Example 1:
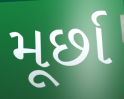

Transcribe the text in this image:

મૂર્છા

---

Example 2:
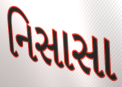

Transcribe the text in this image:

નિસાસા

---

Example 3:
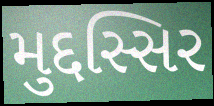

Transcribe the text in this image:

મુદ્દસ્સિર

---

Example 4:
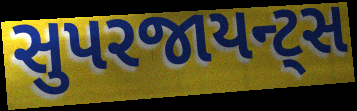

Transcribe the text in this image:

સુપરજાયન્ટ્સ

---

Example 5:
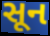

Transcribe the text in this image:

સૂન